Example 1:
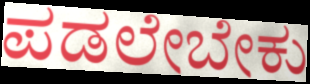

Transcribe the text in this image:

ಪಡಲೇಬೇಕು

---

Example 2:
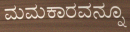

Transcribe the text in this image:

ಮಮಕಾರವನ್ನೂ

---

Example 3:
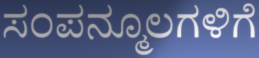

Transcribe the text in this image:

ಸಂಪನ್ಮೂಲಗಳಿಗೆ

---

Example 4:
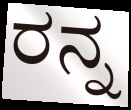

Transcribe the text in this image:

ರನ್ನ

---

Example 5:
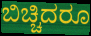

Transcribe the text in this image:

ಬಿಚ್ಚಿದರೂ